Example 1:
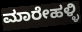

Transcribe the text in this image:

ಮಾರೇಹಳ್ಳಿ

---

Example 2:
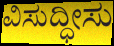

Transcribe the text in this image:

ವಿಸುದ್ಧೀಸು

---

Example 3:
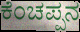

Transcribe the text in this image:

ಕೆಂಚಪ್ಪನ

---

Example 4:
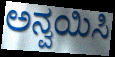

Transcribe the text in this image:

ಅನ್ವಯಿಸಿ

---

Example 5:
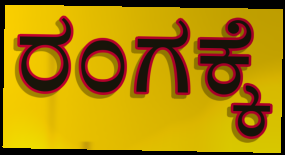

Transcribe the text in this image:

ರಂಗಕ್ಕೆ